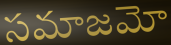
సమాజమో